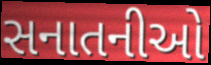
સનાતનીઓ